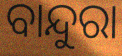
ବାନ୍ଦୁରା